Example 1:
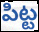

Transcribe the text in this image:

పిట్ట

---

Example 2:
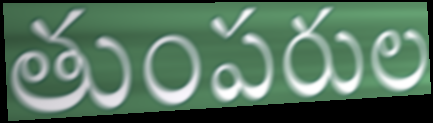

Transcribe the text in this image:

తుంపరుల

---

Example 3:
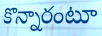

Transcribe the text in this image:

కొన్నారంటూ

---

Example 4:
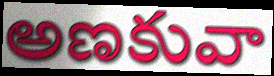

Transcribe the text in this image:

అణకువా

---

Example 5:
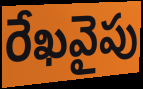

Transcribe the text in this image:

రేఖవైపు